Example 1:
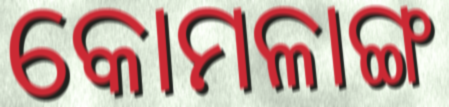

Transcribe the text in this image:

କୋମଳାଙ୍ଗ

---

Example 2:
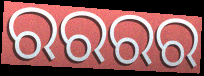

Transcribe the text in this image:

ରରରର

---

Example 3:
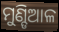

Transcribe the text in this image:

ମୁଣ୍ଡିଆଳ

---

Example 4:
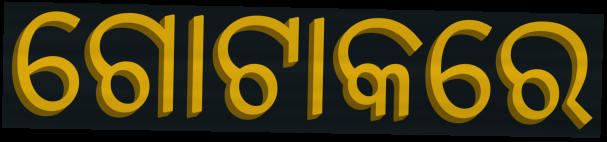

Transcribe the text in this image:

ଗୋଟାକରେ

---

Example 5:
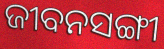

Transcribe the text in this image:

ଜୀବନସଙ୍ଗୀ